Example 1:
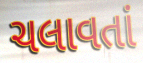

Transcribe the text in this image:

ચલાવતાં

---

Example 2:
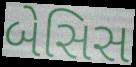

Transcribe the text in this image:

બેસિસ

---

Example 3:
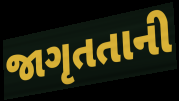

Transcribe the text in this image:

જાગૃતતાની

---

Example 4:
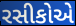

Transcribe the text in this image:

રસીકોએ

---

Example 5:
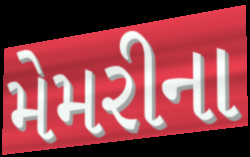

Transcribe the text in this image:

મેમરીના